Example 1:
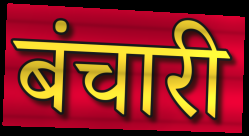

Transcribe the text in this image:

बंचारी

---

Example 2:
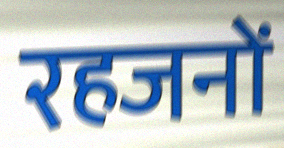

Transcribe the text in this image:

रहजनों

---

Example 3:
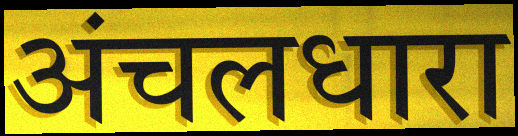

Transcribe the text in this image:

अंचलधारा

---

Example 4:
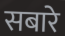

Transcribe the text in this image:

सबारे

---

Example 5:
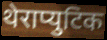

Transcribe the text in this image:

थेराप्युटिक